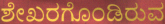
ಶೇಖರಗೊಂಡಿರುವ